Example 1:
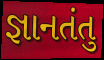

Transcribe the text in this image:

જ્ઞાનતંતુ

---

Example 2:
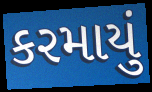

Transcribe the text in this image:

કરમાયું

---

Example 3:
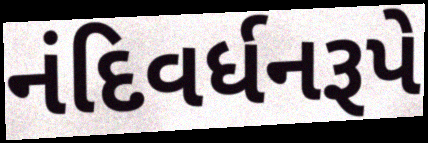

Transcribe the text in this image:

નંદિવર્ધનરૂપે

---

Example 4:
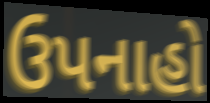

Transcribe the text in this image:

ઉપનાહો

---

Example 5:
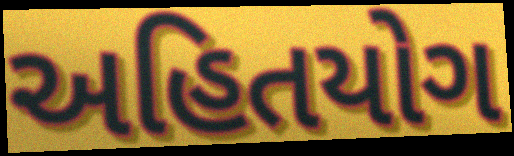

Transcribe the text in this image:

અહિતયોગ